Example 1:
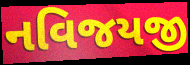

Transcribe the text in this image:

નવિજયજી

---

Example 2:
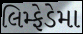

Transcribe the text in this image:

લિમ્ફેડેમા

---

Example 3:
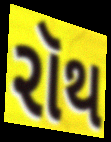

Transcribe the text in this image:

રૉથ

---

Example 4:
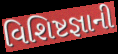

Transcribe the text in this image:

વિશિષ્ટજ્ઞાની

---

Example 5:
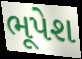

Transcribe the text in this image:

ભૂપેશ